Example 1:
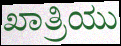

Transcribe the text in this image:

ಖಾತ್ರಿಯು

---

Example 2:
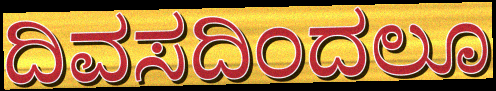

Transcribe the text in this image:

ದಿವಸದಿಂದಲೂ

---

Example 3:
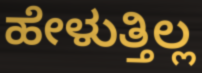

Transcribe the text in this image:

ಹೇಳುತ್ತಿಲ್ಲ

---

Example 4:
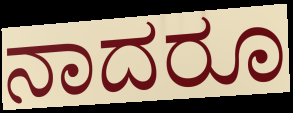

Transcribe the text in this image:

ನಾದರೂ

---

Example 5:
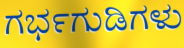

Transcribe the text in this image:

ಗರ್ಭಗುಡಿಗಳು